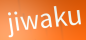
jiwaku